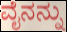
ವೈನನ್ನು